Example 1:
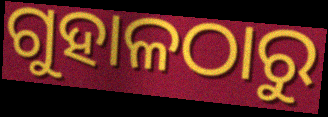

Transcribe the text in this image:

ଗୁହାଳଠାରୁ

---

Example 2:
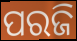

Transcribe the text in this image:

ପରଜି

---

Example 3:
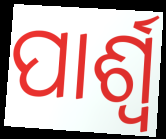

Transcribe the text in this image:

ପାର୍ଶ୍ବ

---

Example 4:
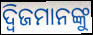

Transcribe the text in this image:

ଦ୍ୱିଜମାନଙ୍କୁ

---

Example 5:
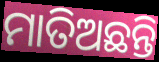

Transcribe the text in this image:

ମାତିଅଛନ୍ତି